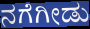
ನಗೆಗೀಡು